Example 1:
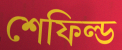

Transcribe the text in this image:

শেফিল্ড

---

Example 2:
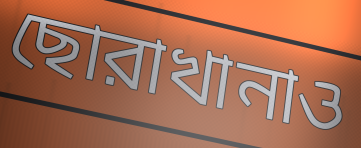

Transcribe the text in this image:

ছোরাখানাও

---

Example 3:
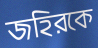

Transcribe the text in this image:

জহিরকে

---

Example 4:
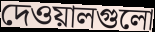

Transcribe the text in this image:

দেওয়ালগুলো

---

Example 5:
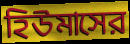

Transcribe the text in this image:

হিউমাসের